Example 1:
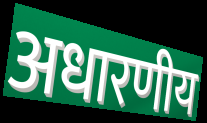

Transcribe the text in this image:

अधारणीय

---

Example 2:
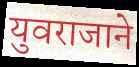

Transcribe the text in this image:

युवराजाने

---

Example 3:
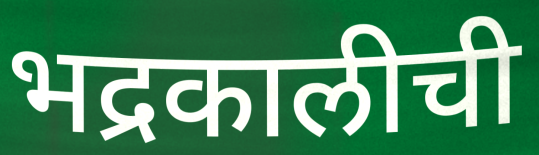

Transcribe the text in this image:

भद्रकालीची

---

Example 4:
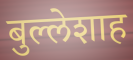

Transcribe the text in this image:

बुल्लेशाह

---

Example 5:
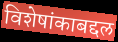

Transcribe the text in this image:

विशेषांकाबद्दल